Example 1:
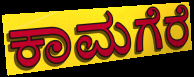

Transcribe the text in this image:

ಕಾಮಗೆರೆ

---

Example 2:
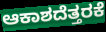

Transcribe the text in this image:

ಆಕಾಶದೆತ್ತರಕೆ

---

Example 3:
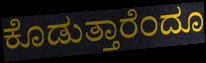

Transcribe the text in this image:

ಕೊಡುತ್ತಾರೆಂದೂ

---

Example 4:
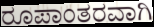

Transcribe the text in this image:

ರೂಪಾಂತರವಾಗಿ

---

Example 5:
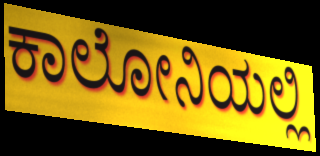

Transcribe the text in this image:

ಕಾಲೋನಿಯಲ್ಲಿ